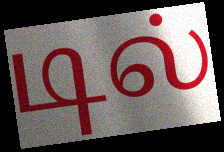
டில்